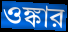
ওঙ্কার